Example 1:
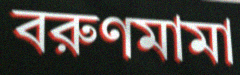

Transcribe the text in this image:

বরুণমামা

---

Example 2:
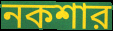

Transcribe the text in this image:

নকশার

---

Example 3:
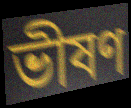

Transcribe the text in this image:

ভীষণ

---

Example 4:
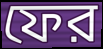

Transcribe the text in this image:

ফের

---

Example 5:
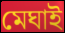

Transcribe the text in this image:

মেঘাই